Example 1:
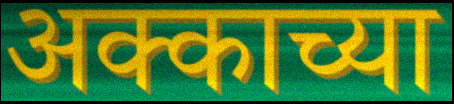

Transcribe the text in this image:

अक्काच्या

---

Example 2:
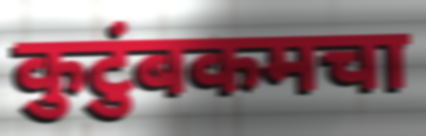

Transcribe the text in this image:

कुटुंबकमचा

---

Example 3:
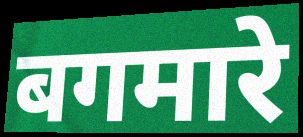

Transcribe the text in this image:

बगमारे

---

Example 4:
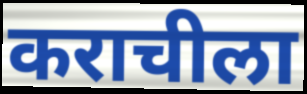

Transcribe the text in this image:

कराचीला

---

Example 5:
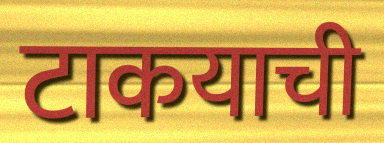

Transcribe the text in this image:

टाकयाची